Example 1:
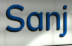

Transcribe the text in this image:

Sanj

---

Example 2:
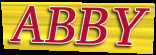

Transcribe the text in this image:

ABBY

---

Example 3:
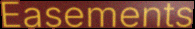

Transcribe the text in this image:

Easements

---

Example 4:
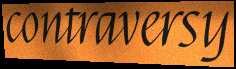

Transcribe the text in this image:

contraversy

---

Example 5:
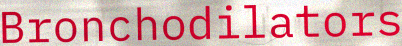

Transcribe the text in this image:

Bronchodilators